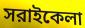
সরাইকেলা